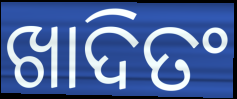
ଖାଦିତଂ